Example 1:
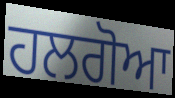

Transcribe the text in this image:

ਹਲਗੋਆ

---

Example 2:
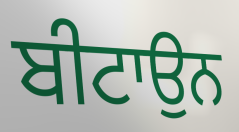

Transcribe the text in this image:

ਬੀਟਾਉਨ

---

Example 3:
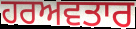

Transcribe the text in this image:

ਹਰਅਵਤਾਰ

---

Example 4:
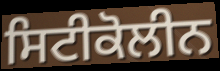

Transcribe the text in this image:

ਸਿਟੀਕੋਲੀਨ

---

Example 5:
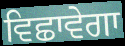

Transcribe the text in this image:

ਵਿਛਾਵੇਗਾ